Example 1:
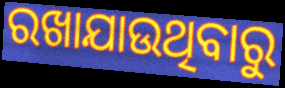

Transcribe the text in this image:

ରଖାଯାଉଥିବାରୁ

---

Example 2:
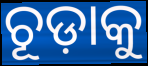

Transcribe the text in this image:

ଚୂଡ଼ାକୁ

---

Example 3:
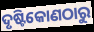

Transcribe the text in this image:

ଦୃଷ୍ଟିକୋଣଠାରୁ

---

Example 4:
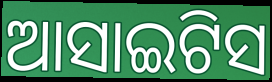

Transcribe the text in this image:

ଆସାଇଟିସ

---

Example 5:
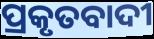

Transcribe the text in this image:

ପ୍ରକୃତବାଦୀ